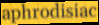
aphrodisiac